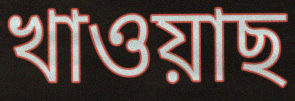
খাওয়াছ